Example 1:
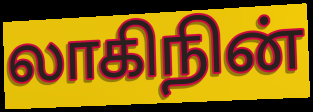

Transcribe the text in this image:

லாகிநின்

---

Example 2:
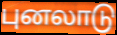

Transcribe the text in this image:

புனலாடு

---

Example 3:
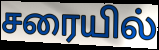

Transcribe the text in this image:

சரையில்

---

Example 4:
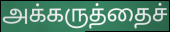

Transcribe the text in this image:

அக்கருத்தைச்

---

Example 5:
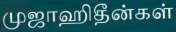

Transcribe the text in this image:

முஜாஹிதீன்கள்